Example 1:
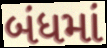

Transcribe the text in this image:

બંધમાં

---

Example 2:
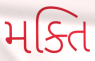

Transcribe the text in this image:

મક્તિ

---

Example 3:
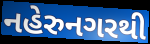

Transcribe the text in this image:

નહેરુનગરથી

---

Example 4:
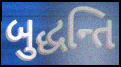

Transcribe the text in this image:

બુદ્ધન્તિ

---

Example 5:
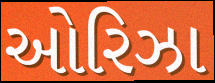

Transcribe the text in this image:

ઓરિઝા